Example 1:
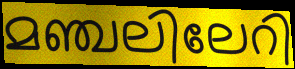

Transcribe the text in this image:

മഞ്ചലിലേറി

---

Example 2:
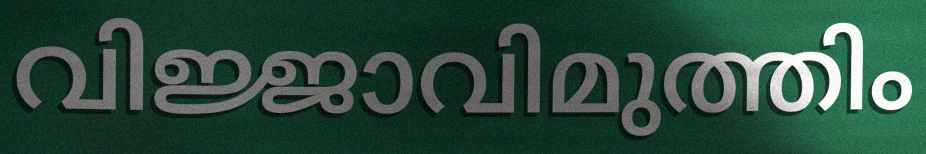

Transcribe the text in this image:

വിജ്ജാവിമുത്തിം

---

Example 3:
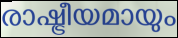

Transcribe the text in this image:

രാഷ്ട്രീയമായും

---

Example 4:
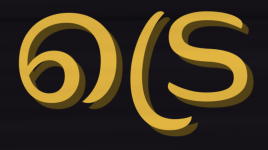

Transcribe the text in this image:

ട്രെ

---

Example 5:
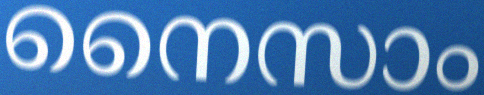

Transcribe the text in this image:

നൈസാം